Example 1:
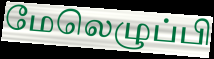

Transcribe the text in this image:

மேலெழுப்பி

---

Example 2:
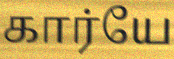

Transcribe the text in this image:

கார்யே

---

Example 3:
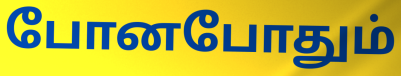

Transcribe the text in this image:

போனபோதும்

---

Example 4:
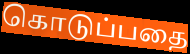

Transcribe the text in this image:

கொடுப்பதை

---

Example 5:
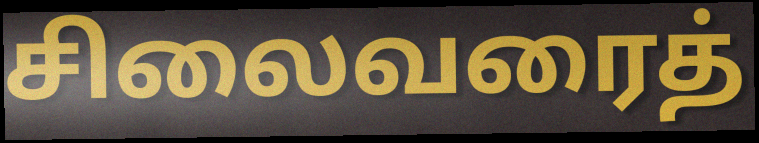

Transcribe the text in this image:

சிலைவரைத்